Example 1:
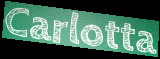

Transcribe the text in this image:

Carlotta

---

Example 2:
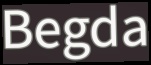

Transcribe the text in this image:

Begda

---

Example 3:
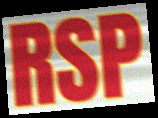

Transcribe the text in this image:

RSP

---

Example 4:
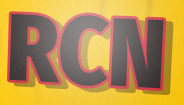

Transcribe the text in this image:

RCN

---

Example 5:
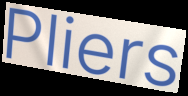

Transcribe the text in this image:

Pliers